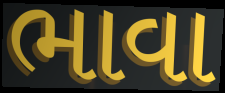
ભાવા